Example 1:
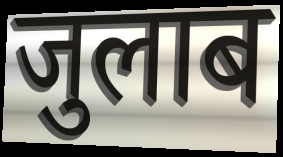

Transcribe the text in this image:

जुलाब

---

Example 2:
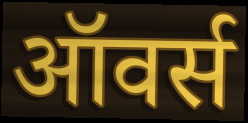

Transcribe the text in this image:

ऑवर्स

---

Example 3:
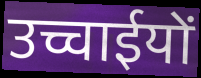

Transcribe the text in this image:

उच्चाईयों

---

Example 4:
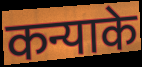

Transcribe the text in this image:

कन्याके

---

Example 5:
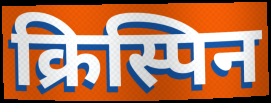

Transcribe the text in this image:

क्रिस्पिन